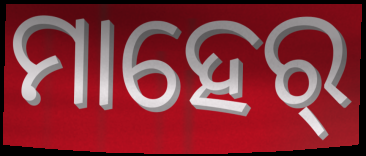
ମାହେର୍